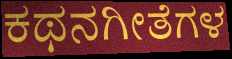
ಕಥನಗೀತೆಗಳ